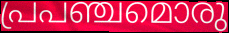
പ്രപഞ്ചമൊരു